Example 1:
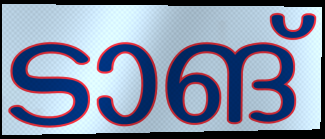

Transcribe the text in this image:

ടാങ്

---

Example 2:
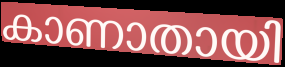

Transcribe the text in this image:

കാണാതായി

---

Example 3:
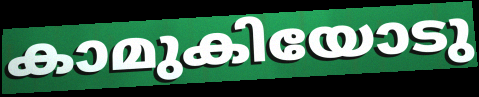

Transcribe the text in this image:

കാമുകിയോടു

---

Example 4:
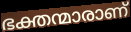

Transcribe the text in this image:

ഭക്തന്മാരാണ്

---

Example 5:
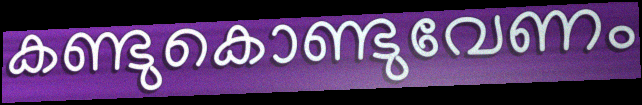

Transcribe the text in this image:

കണ്ടുകൊണ്ടുവേണം